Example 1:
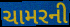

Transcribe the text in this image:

ચામરની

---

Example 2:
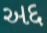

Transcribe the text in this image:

અદ્દ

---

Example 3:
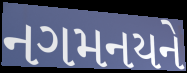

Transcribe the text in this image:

નગમનયને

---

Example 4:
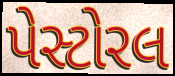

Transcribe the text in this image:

પેસ્ટોરલ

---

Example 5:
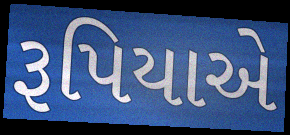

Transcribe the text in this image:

રૂપિયાએ